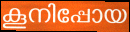
കൂനിപ്പോയ